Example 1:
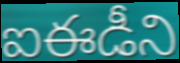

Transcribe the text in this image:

ఐఈడీని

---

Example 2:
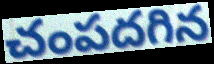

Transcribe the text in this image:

చంపదగిన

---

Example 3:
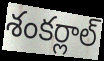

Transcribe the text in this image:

శంకర్లాల్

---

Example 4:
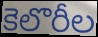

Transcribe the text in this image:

కెలొరీల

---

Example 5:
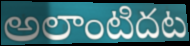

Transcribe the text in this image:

అలాంటిదట